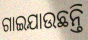
ଗାଇଯାଉଛନ୍ତି